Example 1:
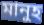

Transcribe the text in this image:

মানুহ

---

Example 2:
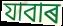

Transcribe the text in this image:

যাবাৰ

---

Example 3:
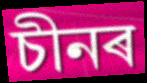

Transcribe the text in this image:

চীনৰ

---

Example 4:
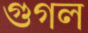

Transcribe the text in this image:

গুগল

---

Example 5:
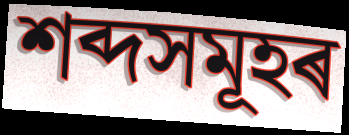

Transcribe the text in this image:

শব্দসমূহৰ